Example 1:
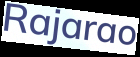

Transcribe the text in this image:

Rajarao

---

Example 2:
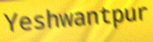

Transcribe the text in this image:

Yeshwantpur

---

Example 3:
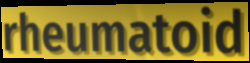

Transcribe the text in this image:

rheumatoid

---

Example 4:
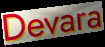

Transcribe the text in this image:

Devara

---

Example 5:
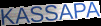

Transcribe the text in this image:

KASSAPA